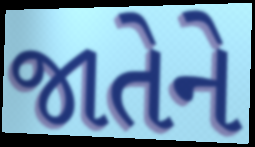
જાતેને